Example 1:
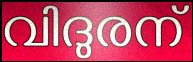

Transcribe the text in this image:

വിദുരന്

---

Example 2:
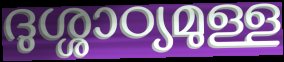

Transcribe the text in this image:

ദുശ്ശാഠ്യമുള്ള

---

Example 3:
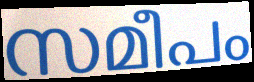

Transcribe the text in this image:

സമീപം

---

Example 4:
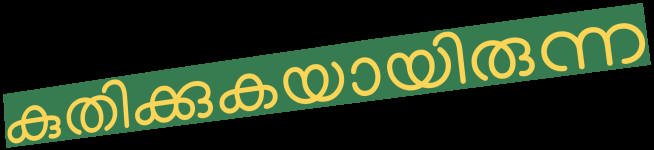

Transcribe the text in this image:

കുതിക്കുകയായിരുന്ന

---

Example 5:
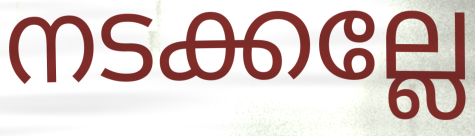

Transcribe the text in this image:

നടക്കല്ലേ